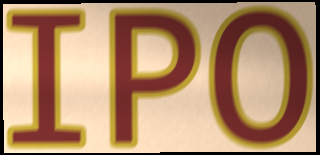
IPO